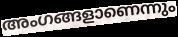
അംഗങ്ങളാണെന്നും